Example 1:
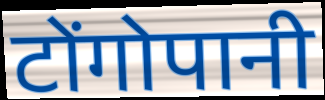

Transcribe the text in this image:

टोंगोपानी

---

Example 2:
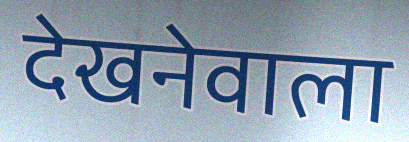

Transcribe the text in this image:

देखनेवाला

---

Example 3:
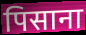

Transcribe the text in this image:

पिसाना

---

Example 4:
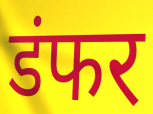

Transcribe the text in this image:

डंफर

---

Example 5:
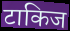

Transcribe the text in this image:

टाकिज